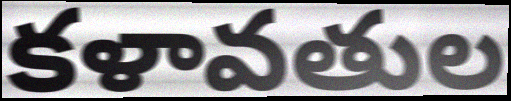
కళావతుల